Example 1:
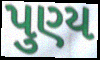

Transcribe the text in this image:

પુણ્ય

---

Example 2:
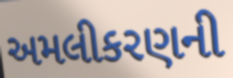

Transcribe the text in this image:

અમલીકરણની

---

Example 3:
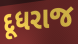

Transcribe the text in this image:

દૂધરાજ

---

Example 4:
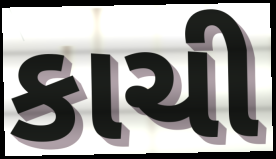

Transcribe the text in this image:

કાચી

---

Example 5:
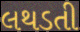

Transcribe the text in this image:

લથડતી